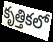
కృత్తికలో